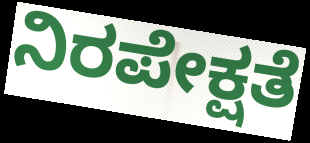
ನಿರಪೇಕ್ಷತೆ